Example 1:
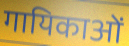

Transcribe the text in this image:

गायिकाओं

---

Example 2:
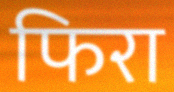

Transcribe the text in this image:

फिरा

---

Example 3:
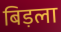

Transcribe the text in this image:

बिड़ला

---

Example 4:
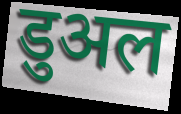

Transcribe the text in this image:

डुअल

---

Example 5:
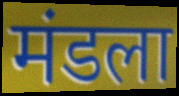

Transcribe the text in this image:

मंडला